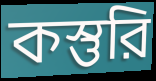
কস্তুরি